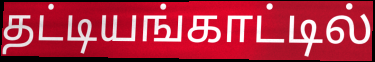
தட்டியங்காட்டில்